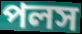
পলস